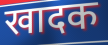
खादक